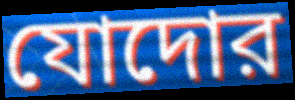
যোদোর